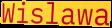
Wislawa